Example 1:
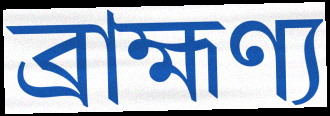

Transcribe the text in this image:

ব্রাহ্মণ্য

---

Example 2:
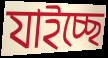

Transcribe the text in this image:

যাইচ্ছে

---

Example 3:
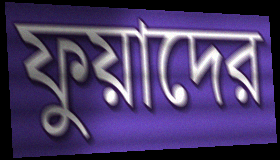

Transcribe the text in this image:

ফুয়াদের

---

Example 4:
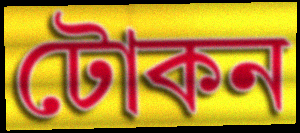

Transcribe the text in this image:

টোকন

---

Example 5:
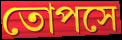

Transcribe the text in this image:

তোপসে